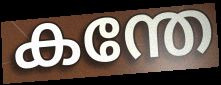
കന്തേ